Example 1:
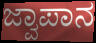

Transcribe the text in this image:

ಜ್ವಾಪಾನ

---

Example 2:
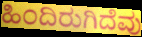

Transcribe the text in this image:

ಹಿಂದಿರುಗಿದೆವು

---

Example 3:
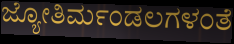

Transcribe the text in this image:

ಜ್ಯೋತಿರ್ಮಂಡಲಗಳಂತೆ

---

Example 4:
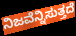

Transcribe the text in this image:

ನಿಜವೆನ್ನಿಸುತ್ತದೆ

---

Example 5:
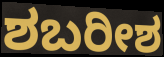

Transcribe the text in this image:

ಶಬರೀಶ